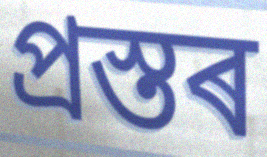
প্ৰস্তৰ